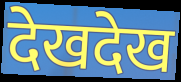
देखदेख